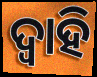
ଦ୍ୱାହି